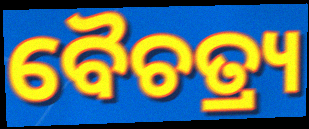
ବୈଚତ୍ର୍ୟ